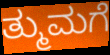
ತ್ಮುಮಗೆ